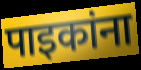
पाइकांना